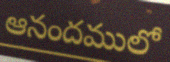
ఆనందములో